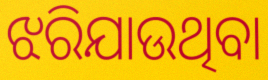
ଝରିଯାଉଥିବା